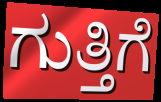
ಗುತ್ತಿಗೆ